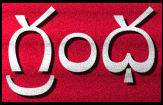
గ్రంధ